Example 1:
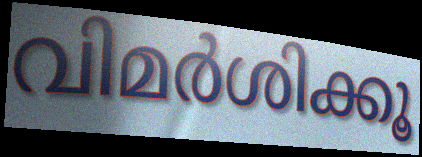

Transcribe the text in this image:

വിമർശിക്കൂ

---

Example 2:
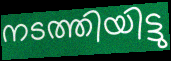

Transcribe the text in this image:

നടത്തിയിട്ടു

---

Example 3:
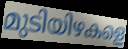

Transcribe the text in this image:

മുടിയിഴകളെ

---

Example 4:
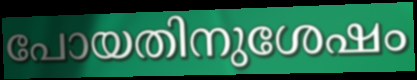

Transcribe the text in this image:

പോയതിനുശേഷം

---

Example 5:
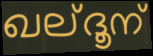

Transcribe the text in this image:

ഖല്ദൂന്